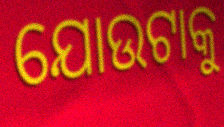
ଯୋଉଟାକୁ